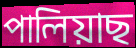
পালিয়াছ